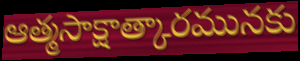
ఆత్మసాక్షాత్కారమునకు